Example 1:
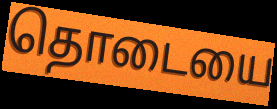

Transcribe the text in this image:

தொடையை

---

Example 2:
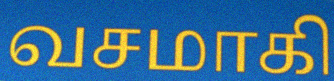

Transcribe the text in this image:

வசமாகி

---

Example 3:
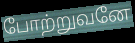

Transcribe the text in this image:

போற்றுவனே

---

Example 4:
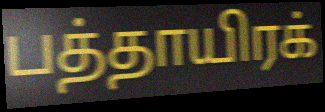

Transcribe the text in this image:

பத்தாயிரக்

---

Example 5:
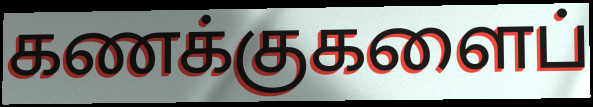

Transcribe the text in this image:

கணக்குகளைப்